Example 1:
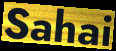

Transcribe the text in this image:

Sahai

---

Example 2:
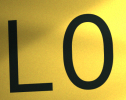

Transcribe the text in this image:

LO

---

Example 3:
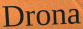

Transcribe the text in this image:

Drona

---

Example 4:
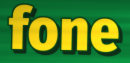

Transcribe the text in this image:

fone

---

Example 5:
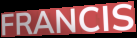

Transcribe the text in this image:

FRANCIS